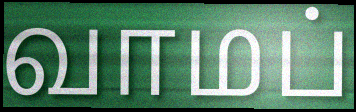
வாமப்